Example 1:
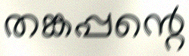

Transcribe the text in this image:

തങ്കപ്പന്റെ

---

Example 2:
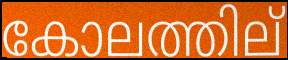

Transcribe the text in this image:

കോലത്തില്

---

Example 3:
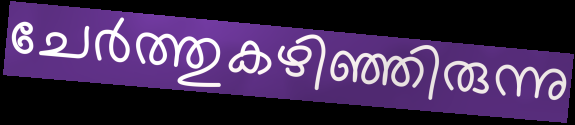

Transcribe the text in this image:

ചേർത്തുകഴിഞ്ഞിരുന്നു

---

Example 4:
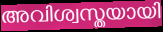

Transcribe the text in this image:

അവിശ്വസ്തയായി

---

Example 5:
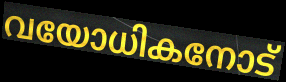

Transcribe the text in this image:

വയോധികനോട്